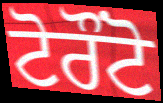
ਟੋਰੌੰਟੋ